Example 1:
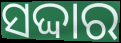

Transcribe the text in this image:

ସଦ୍ଦାର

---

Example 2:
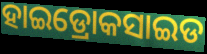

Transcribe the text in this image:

ହାଇଡ୍ରୋକସାଇଡ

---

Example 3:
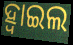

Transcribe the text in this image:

ହ୍ବାଇଲ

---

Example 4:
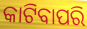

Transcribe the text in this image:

କାଟିବାପରି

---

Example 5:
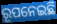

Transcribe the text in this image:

ରୂପନେଇଛି